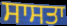
ਸਾਸਤਾ